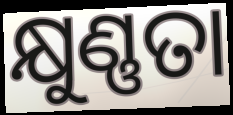
କ୍ଷୁଣ୍ଣତା